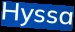
Hyssa